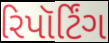
રિપૉર્ટિંગ